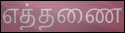
எத்தணை